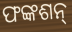
ଫଙ୍କଶନ୍